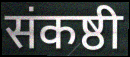
संकष्ठी